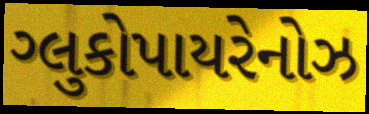
ગ્લુકોપાયરેનોઝ